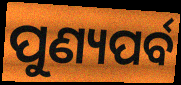
ପୁଣ୍ୟପର୍ବ